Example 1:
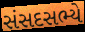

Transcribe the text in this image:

સંસદસભ્યે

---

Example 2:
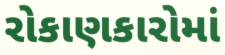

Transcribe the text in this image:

રોકાણકારોમાં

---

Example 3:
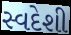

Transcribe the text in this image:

સ્વદેશી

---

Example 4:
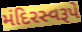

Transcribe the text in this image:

મંદિરસ્વરૂપે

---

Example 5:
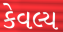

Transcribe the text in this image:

કેવલ્ય